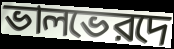
ভালভেরদে